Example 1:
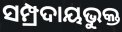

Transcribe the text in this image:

ସମ୍ପ୍ରଦାୟଭୁକ୍ତ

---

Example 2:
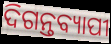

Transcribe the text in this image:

ଦିଗନ୍ତବ୍ୟାପୀ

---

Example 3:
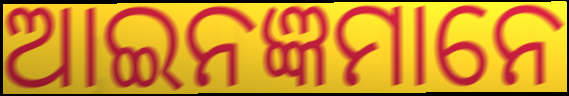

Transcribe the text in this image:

ଆଇନଜ୍ଞମାନେ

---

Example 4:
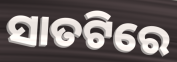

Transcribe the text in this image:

ସାତଟିରେ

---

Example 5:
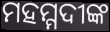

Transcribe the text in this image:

ମହମ୍ମଦୀଙ୍କ